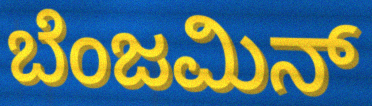
ಬೆಂಜಮಿನ್